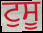
ਟੁਸੂ